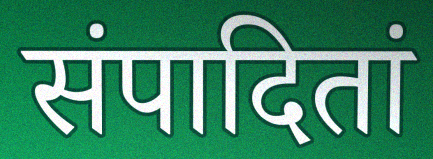
संपादितां